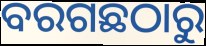
ବରଗଛଠାରୁ